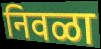
निवळा